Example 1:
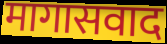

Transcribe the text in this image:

मागासवाद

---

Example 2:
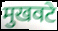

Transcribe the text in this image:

मुखवटे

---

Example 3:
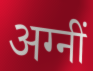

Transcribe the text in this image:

अग्नीं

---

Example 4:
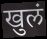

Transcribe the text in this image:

खुलं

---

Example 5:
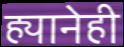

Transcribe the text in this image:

ह्यानेही